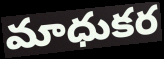
మాధుకర